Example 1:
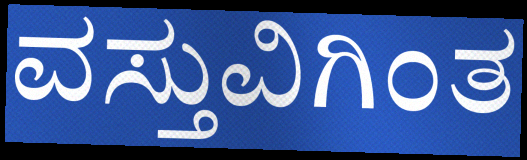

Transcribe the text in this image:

ವಸ್ತುವಿಗಿಂತ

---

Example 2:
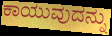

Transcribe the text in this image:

ಕಾಯುವುದನ್ನು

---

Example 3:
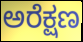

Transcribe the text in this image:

ಅರೆಕ್ಷಣ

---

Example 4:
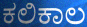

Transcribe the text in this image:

ಕಲಿಕಾಲ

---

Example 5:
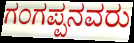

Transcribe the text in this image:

ಗಂಗಪ್ಪನವರು